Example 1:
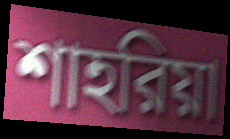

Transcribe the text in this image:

শাহরিয়া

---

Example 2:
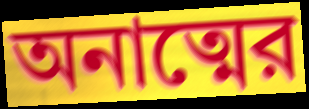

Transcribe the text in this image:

অনাত্মের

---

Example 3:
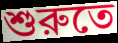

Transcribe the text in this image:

শুরুতে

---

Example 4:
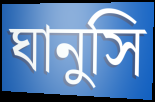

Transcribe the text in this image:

ঘানুসি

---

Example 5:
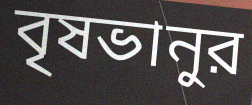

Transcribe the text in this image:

বৃষভানুর